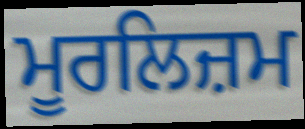
ਮੂਰਲਿਜ਼ਮ